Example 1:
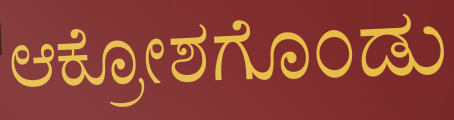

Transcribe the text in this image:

ಆಕ್ರೋಶಗೊಂಡು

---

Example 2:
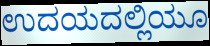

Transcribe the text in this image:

ಉದಯದಲ್ಲಿಯೂ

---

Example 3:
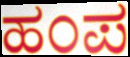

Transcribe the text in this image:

ಹಂಪ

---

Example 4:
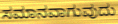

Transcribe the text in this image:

ಸಮಾನವಾಗುವುದು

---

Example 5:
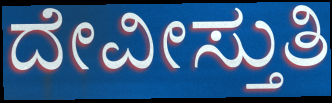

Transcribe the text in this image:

ದೇವೀಸ್ತುತಿ